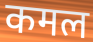
कमल